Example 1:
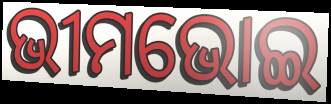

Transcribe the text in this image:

ଭୀମଭୋଇ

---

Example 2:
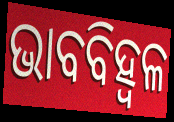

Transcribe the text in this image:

ଭାବବିହ୍ବଳ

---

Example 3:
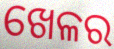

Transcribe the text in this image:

ଖେଳର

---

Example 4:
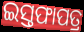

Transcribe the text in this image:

ଇସ୍ତଫାପତ୍ର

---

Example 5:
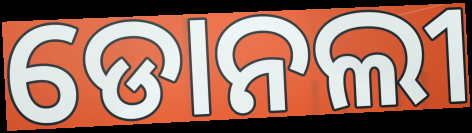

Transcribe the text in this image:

ଡୋନଲୀ